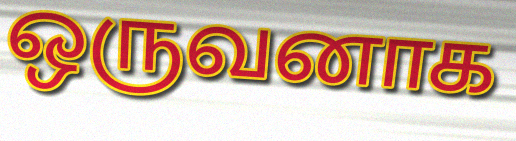
ஒருவனாக